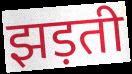
झड़ती